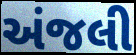
અંજલી